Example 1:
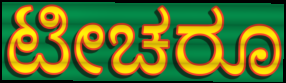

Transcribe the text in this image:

ಟೀಚರೂ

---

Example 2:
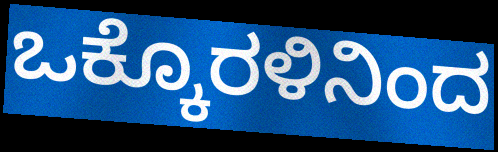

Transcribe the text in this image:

ಒಕ್ಕೊರಳಿನಿಂದ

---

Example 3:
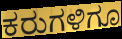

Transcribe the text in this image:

ಕರುಗಳಿಗೂ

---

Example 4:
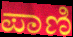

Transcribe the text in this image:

ಪಾಣಿ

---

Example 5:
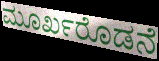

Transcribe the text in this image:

ಮೂರ್ಖರೊಡನೆ